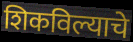
शिकविल्याचे